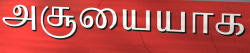
அசூயையாக